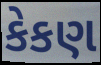
કેકણ